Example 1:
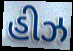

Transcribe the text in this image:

હીઝ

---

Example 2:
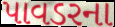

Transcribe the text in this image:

પાવડરના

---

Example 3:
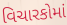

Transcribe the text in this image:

વિચારકોમાં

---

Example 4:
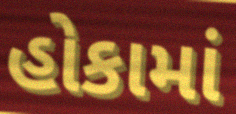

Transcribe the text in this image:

હોકામાં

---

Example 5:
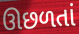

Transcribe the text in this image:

ઊછળતાં